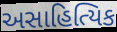
અસાહિત્યિક